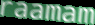
raamam